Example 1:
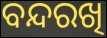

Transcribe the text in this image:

ବନ୍ଦରଖି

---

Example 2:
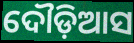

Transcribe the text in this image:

ଦୌଡ଼ିଆସ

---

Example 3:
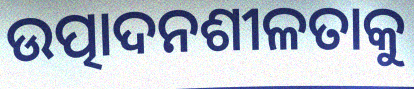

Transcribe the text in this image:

ଉତ୍ପାଦନଶୀଳତାକୁ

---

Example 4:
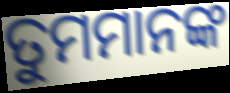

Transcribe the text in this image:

ତୁମମାନଙ୍କ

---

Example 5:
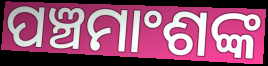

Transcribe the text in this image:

ପଞ୍ଚମାଂଶଙ୍କ